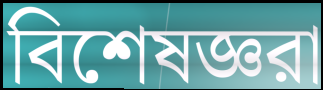
বিশেষজ্ঞরা